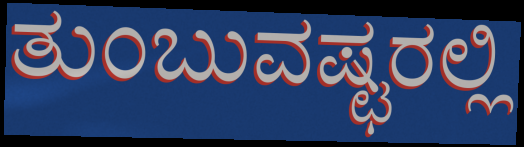
ತುಂಬುವಷ್ಟರಲ್ಲಿ